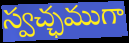
స్వచ్ఛముగా